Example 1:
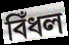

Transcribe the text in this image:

বিঁধল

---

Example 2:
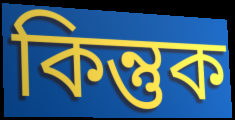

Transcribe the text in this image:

কিন্তুক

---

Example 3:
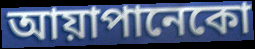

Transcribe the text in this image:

আয়াপানেকো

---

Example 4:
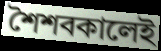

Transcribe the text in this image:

শৈশবকালেই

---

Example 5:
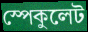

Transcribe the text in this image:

স্পেকুলেট